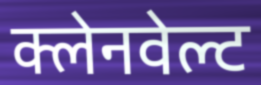
क्लेनवेल्ट